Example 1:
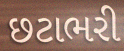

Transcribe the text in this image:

છટાભરી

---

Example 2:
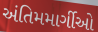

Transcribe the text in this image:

અંતિમમાર્ગીઓ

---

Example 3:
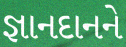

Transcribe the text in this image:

જ્ઞાનદાનને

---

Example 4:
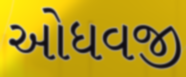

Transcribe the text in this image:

ઓધવજી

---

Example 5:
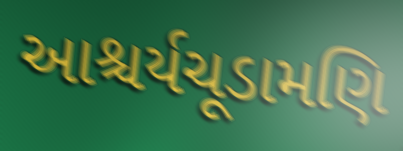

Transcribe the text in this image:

આશ્ચર્યચૂડામણિ